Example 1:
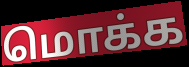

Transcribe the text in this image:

மொக்க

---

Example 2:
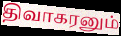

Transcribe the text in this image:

திவாகரனும்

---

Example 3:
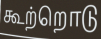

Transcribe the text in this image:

கூற்றொடு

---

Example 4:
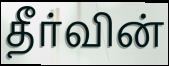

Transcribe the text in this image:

தீர்வின்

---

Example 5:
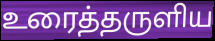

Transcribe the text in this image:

உரைத்தருளிய